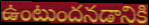
ఉంటుందనడానికి